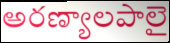
అరణ్యాలపాలై